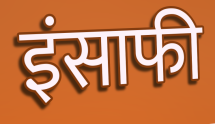
इंसाफी